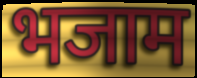
भजाम